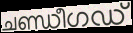
ചണ്ഡീഗഡ്